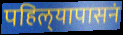
पहिल्यापासनं